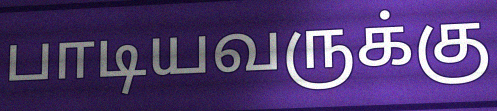
பாடியவருக்கு